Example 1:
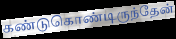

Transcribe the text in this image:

கண்டுகொண்டிருந்தேன்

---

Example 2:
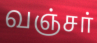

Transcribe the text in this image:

வஞ்சர்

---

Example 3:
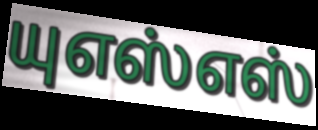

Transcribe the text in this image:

யுஎஸ்எஸ்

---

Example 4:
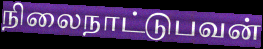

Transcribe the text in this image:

நிலைநாட்டுபவன்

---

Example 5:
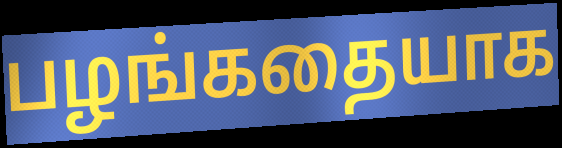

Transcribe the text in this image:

பழங்கதையாக